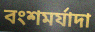
বংশমর্যাদা